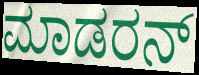
ಮಾಡರನ್